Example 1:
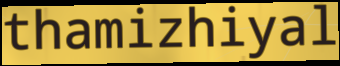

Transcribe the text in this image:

thamizhiyal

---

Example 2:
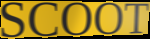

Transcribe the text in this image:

SCOOT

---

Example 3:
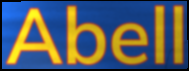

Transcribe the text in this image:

Abell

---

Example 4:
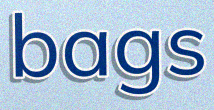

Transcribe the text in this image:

bags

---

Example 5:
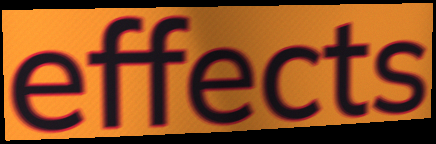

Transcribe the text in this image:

effects